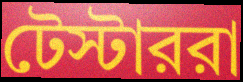
টেস্টাররা